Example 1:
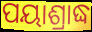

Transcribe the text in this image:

ପୟାଶ୍ରାଦ୍ଧ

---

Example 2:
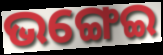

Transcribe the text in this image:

ଭଙ୍ଗେଇ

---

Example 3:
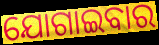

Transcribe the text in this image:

ଯୋଗାଇବାର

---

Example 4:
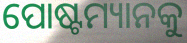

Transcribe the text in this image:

ପୋଷ୍ଟମ୍ୟାନକୁ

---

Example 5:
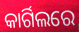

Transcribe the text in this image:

କାର୍ଗିଲରେ